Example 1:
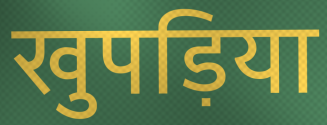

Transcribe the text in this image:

खुपड़िया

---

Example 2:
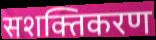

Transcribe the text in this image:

सशक्‍तिकरण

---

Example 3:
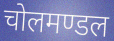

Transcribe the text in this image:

चोलमण्डल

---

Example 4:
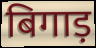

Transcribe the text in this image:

बिगाड़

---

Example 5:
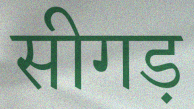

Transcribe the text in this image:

सीगड़